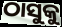
ଠାସୁକୁ